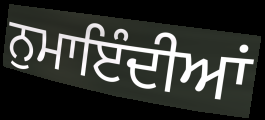
ਨੁਮਾਇੰਦੀਆਂ